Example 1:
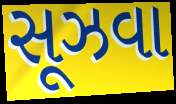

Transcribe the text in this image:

સૂઝવા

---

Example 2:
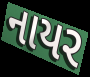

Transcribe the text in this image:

નાયર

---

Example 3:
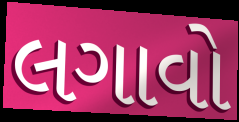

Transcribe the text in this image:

લગાવો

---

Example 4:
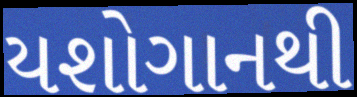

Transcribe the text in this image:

યશોગાનથી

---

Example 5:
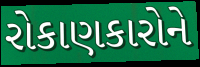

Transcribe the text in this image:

રોકાણકારોને